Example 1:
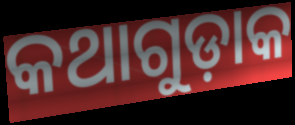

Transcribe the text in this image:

କଥାଗୁଡ଼ାକ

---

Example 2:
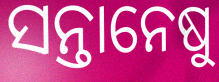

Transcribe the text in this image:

ସନ୍ତାନେଷୁ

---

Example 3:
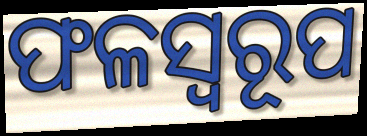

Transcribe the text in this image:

ଫଳସ୍ୱରୂପ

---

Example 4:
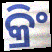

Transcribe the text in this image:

କ୍ରିଂ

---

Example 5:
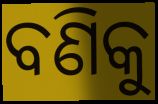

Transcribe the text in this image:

ବଣିକୁ